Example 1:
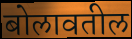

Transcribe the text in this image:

बोलावतील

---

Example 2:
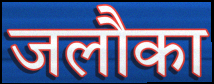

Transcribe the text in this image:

जलौका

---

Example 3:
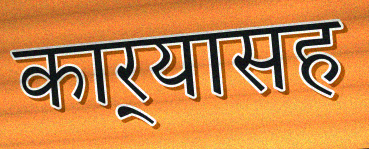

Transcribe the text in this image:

कार्यासह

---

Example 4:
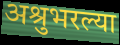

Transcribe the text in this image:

अश्रुभरल्या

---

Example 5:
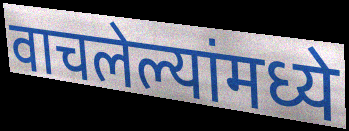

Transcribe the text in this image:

वाचलेल्यांमध्ये